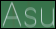
Asu